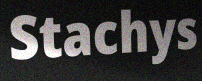
Stachys